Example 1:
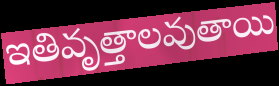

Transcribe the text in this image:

ఇతివృత్తాలవుతాయి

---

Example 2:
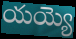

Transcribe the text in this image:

యయ్యె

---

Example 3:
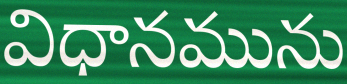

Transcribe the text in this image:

విధానమును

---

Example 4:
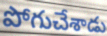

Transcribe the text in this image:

పోగుచేశాడు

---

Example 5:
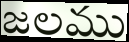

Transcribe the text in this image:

జలము